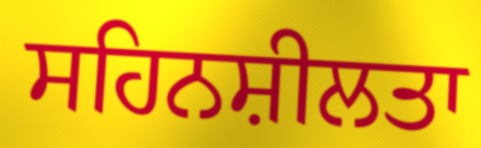
ਸਹਿਨਸ਼ੀਲਤਾ